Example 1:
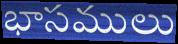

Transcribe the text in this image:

భాసములు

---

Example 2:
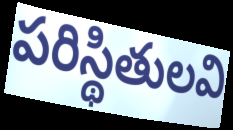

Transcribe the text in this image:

పరిస్థితులవి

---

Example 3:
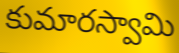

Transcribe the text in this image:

కుమారస్వామి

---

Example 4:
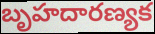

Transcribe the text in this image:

బృహదారణ్యక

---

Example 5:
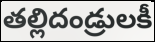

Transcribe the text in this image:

తల్లిదండ్రులకీ